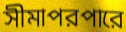
সীমাপরপারে